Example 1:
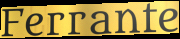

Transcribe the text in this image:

Ferrante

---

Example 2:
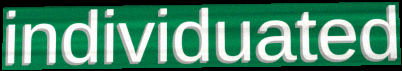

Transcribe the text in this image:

individuated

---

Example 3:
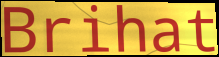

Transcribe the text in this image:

Brihat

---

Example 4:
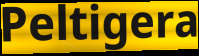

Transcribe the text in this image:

Peltigera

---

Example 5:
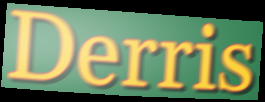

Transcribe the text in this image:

Derris